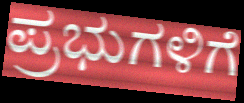
ಪ್ರಭುಗಳಿಗೆ